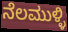
ನೆಲಮುಳ್ಳಿ